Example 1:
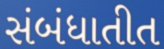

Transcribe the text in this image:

સંબંધાતીત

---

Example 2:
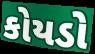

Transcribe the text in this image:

કોયડો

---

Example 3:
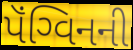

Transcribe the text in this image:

પૅંગ્વિનની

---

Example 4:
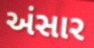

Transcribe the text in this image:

અંસાર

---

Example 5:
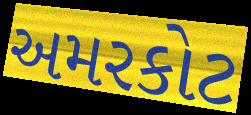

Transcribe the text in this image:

અમરકોટ